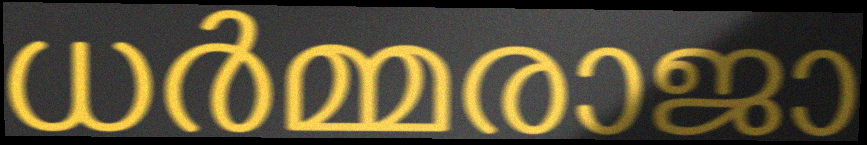
ധർമ്മരാജാ